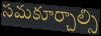
సమకూర్చాల్సి